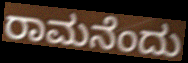
ರಾಮನೆಂದು